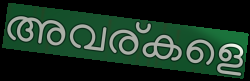
അവര്കളെ